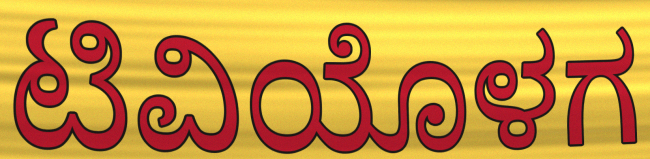
ಟಿವಿಯೊಳಗ